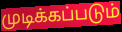
முடிக்கப்படும்